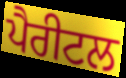
ਪੈਰੀਟਲ